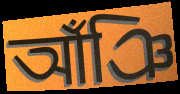
আঁঞি